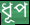
ধূপ